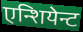
एन्शियेन्ट